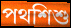
পথশিশু